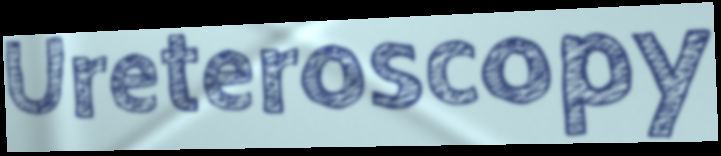
Ureteroscopy